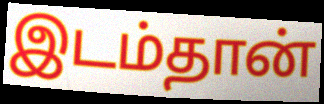
இடம்தான்